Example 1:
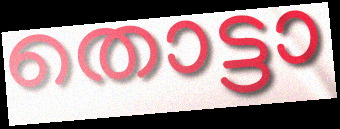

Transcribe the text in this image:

തൊട്ടാ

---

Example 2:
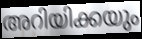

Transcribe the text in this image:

അറിയിക്കയും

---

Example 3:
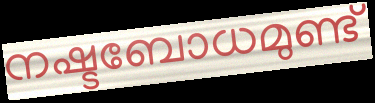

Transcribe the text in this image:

നഷ്ടബോധമുണ്ട്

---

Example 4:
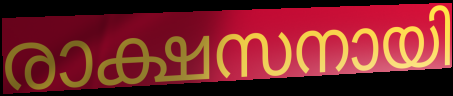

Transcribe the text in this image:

രാക്ഷസനായി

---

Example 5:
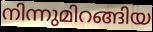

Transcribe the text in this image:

നിന്നുമിറങ്ങിയ